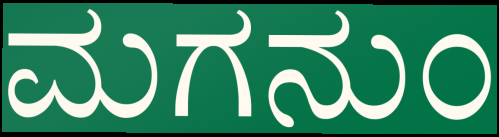
ಮಗನುಂ